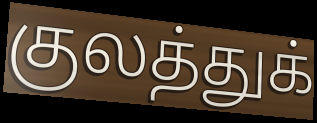
குலத்துக்